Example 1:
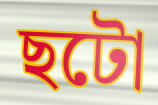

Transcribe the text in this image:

ছটো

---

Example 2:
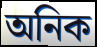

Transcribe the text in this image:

অনিক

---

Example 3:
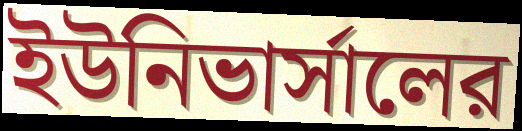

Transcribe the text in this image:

ইউনিভার্সালের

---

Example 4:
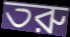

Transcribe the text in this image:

তরু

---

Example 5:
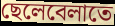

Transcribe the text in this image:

ছেলেবেলাতে